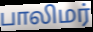
பாலிமர்